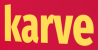
karve